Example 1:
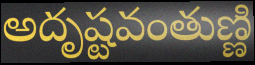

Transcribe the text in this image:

అదృష్టవంతుణ్ణి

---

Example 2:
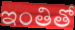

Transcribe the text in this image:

ఇంతితో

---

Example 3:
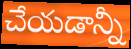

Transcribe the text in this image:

చేయడాన్నీ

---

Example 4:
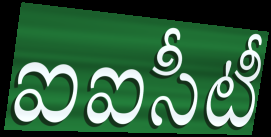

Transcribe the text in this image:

ఐఐసీటీ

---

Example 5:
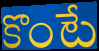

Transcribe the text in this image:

కొంటే